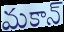
మకాన్